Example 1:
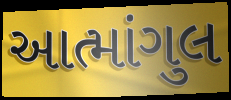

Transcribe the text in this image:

આત્માંગુલ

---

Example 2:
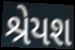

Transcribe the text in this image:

શ્રેયશ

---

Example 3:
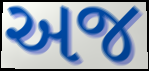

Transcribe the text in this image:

અજ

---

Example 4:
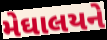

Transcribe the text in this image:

મેઘાલયને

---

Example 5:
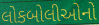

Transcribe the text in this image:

લોકબોલીઓનો